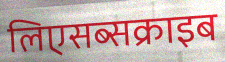
लिएसब्सक्राइब